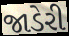
જાડેરી